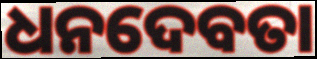
ଧନଦେବତା